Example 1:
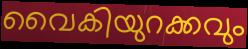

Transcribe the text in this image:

വൈകിയുറക്കവും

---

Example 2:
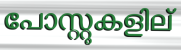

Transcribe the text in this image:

പോസ്റ്റുകളില്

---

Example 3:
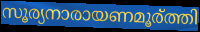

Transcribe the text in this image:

സൂര്യനാരായണമൂര്ത്തി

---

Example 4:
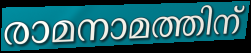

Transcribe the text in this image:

രാമനാമത്തിന്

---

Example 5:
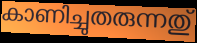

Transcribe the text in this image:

കാണിച്ചുതരുന്നതു്